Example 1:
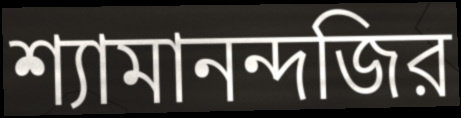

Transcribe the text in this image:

শ্যামানন্দজির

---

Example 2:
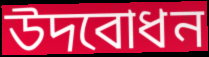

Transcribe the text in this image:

উদবোধন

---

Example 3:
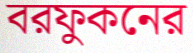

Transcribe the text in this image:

বরফুকনের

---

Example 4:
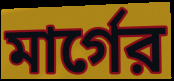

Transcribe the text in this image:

মার্গের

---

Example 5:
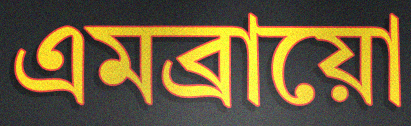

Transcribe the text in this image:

এমব্রায়ো